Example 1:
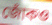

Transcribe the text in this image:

জোঁকও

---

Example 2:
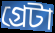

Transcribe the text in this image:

গ্রেটা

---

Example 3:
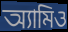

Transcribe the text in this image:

অ্যামিও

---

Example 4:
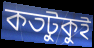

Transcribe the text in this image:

কতটুকুই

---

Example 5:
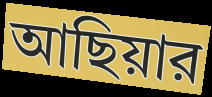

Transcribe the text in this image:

আছিয়ার